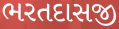
ભરતદાસજી